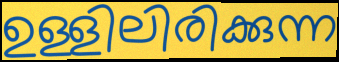
ഉള്ളിലിരിക്കുന്ന